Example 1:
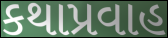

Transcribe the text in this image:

કથાપ્રવાહ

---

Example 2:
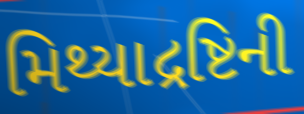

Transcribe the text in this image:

મિથ્યાદ્રષ્ટિની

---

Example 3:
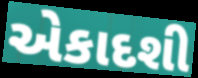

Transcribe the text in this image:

એકાદશી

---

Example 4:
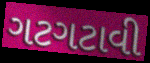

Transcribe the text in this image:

ગટગટાવી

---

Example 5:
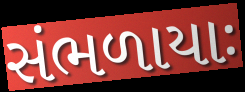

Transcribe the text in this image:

સંભળાયાઃ